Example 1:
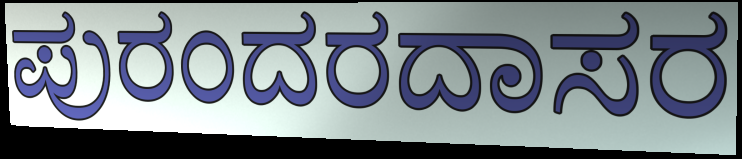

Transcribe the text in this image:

ಪುರಂದರದಾಸರ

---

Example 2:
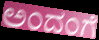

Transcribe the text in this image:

ಅಂದಂಗೆ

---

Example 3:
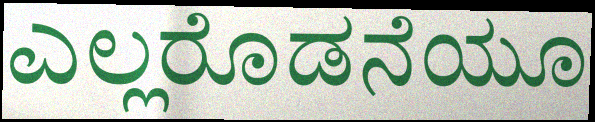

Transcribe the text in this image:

ಎಲ್ಲರೊಡನೆಯೂ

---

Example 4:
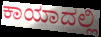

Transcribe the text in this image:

ಕಾಯಾದಲ್ಲಿ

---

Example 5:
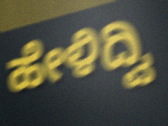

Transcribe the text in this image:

ಹೇಳಿದ್ವಿ